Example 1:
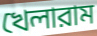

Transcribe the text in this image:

খেলারাম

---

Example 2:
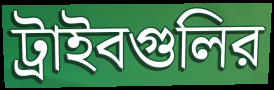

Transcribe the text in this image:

ট্রাইবগুলির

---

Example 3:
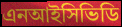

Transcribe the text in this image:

এনআইসিভিডি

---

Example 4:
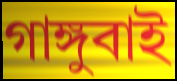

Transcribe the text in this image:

গাঙ্গুবাই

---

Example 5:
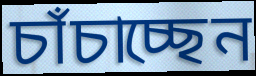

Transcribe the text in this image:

চাঁচাচ্ছেন